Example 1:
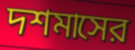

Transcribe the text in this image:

দশমাসের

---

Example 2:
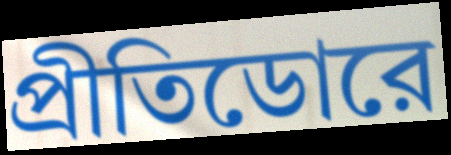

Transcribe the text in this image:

প্রীতিডোরে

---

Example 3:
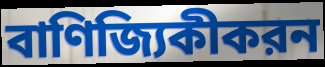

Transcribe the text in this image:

বাণিজ্যিকীকরন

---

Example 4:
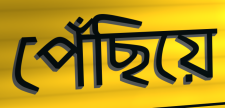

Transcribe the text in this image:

পেঁছিয়ে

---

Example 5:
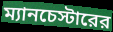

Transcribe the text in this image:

ম্যানচেস্টারের